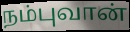
நம்புவான்